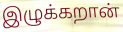
இழுக்கறான்